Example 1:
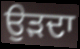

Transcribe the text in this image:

ਉੜਦਾ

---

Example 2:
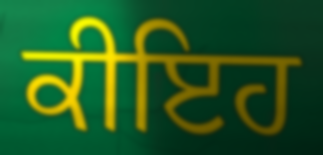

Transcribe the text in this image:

ਕੀਇਹ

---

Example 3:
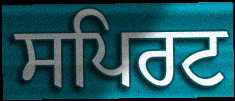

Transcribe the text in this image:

ਸਪਿਰਟ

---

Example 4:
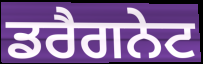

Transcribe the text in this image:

ਡਰੈਗਨੇਟ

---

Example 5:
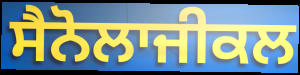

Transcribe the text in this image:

ਸੈਨੋਲਾਜੀਕਲ